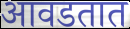
आवडतात